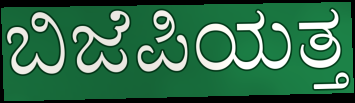
ಬಿಜೆಪಿಯತ್ತ